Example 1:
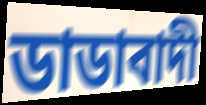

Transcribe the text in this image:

ডাডাবাদী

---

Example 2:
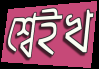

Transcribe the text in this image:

শ্বেইখ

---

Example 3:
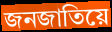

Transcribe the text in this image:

জনজাতিয়ে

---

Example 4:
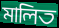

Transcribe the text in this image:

মালিত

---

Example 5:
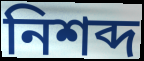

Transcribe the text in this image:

নিশব্দ